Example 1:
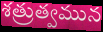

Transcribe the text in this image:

శత్రుత్వమున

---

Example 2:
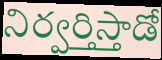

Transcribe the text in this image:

నిర్వర్తిస్తాడో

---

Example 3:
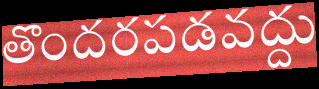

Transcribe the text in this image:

తొందరపడవద్దు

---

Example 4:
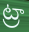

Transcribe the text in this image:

ట్రా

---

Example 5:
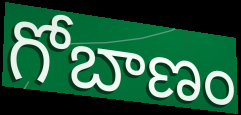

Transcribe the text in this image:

గోబాణం